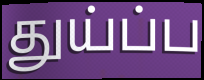
துய்ப்ப